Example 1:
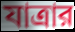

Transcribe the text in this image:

যাত্রার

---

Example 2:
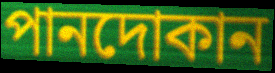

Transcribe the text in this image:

পানদোকান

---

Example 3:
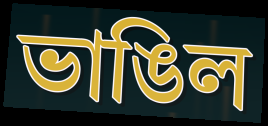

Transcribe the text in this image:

ভাঙিল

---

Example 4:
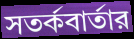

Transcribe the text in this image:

সতর্কবার্তার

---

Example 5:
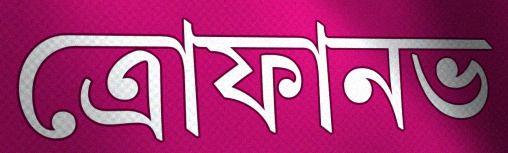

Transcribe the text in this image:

ত্রোফানভ